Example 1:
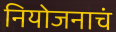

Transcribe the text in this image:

नियोजनाचं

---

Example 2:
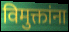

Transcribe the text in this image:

विमुक्तांना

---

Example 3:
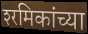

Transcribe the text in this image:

श्रमिकांच्या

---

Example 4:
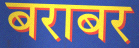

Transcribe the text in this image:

बराबर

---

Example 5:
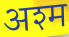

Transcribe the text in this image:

अश्म